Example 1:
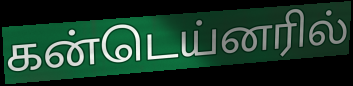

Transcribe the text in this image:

கன்டெய்னரில்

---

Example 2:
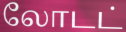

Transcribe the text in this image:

லோடட்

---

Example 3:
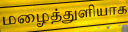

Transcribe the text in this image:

மழைத்துளியாக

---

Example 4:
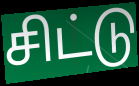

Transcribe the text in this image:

சிட்டு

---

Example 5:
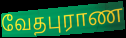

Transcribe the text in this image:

வேதபுராண